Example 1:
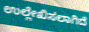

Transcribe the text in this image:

ಉಲ್ಲೇಖಿಸಲಾಗಿದೆ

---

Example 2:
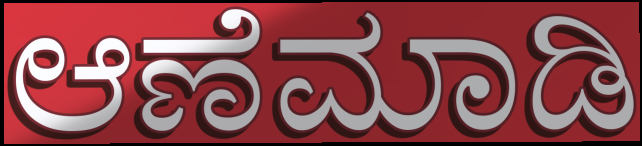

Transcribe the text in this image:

ಆಣೆಮಾಡಿ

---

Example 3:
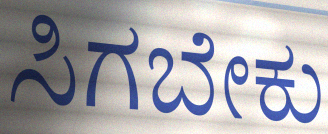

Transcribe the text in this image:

ಸಿಗಬೇಕು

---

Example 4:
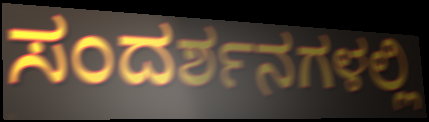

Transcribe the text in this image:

ಸಂದರ್ಶನಗಳಲ್ಲಿ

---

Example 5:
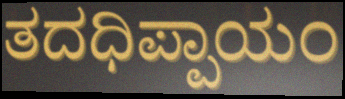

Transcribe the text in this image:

ತದಧಿಪ್ಪಾಯಂ